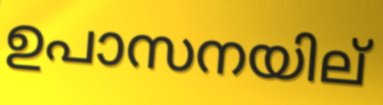
ഉപാസനയില്